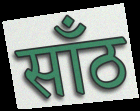
साँठ